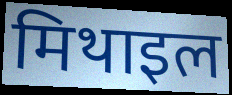
मिथाइल